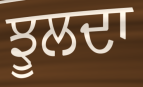
ਝੂਲਦਾ